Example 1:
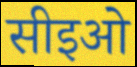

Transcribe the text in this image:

सीइओ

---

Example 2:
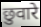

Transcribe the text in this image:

छुवारे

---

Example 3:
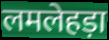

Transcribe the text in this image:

लमलेहड़ा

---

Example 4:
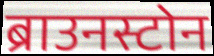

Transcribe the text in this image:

ब्राउनस्टोन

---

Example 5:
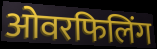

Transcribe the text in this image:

ओवरफिलिंग